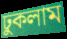
ঢুকলাম